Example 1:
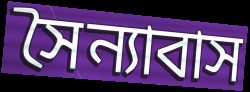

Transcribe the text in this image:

সৈন্যাবাস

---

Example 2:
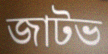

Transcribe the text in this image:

জাটভ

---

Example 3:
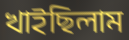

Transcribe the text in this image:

খাইছিলাম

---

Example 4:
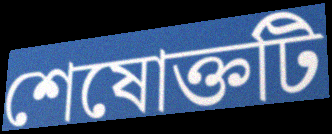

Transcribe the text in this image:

শেষোক্তটি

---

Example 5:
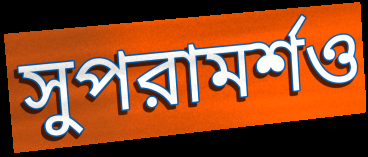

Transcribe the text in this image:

সুপরামর্শও